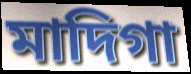
মাদিগা